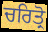
ਚਰਿਤ੍ਰੋ